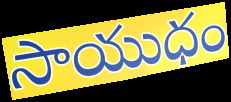
సాయుధం